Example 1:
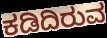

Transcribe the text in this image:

ಕಡಿದಿರುವ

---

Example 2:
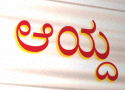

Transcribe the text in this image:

ಆಯ್ದ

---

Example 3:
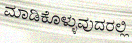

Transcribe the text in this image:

ಮಾಡಿಕೊಳ್ಳುವುದರಲ್ಲಿ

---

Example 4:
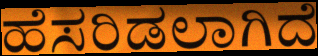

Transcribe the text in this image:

ಹೆಸರಿಡಲಾಗಿದೆ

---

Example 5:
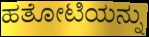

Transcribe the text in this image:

ಹತೋಟಿಯನ್ನು